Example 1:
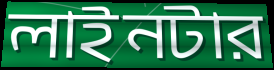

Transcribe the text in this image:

লাইনটার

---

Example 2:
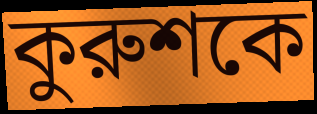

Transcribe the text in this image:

কুরুশকে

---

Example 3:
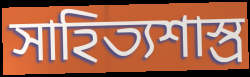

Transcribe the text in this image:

সাহিত্যশাস্ত্র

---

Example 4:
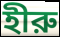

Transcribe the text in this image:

হীরু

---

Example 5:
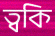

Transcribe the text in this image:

ত্বকি